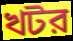
খটর